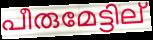
പീരുമേട്ടില്